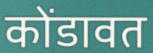
कोंडावत